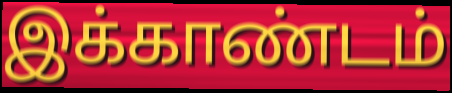
இக்காண்டம்